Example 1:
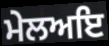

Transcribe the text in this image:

ਮੇਲਅਇ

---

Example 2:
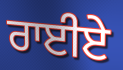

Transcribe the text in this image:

ਰਾਈਏ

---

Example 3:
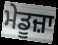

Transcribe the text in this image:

ਮੇਡੂਜ਼ਾ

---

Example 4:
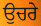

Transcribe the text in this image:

ਉਚਰੇ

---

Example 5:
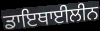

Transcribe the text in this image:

ਡਾਇਥਾਈਲੀਨ